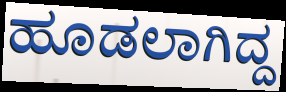
ಹೂಡಲಾಗಿದ್ದ